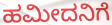
ಹಮೀದನಿಗೆ